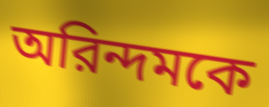
অরিন্দমকে